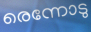
രെന്നോടു